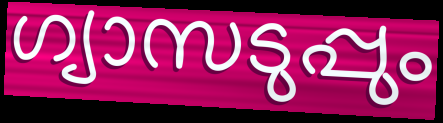
ഗ്യാസടുപ്പും